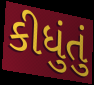
કીધુંતું